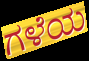
ಗಳೆಯ